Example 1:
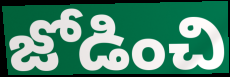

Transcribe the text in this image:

జోడించి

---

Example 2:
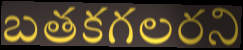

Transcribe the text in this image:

బతకగలరని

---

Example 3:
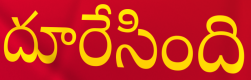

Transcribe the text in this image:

దూరేసింది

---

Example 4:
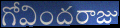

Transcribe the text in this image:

గోవిందరాజు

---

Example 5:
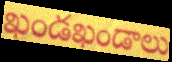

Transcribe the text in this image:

ఖండఖండాలు